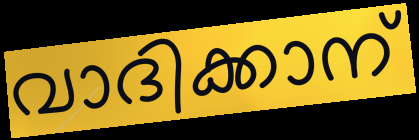
വാദിക്കാന്